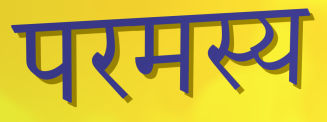
परमस्य